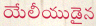
యేలీయుడైన